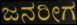
ಜನರೀಗ